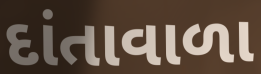
દાંતાવાળા